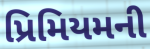
પ્રિમિયમની